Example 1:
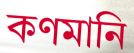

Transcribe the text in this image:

কণমানি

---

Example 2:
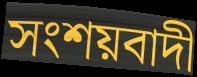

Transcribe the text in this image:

সংশয়বাদী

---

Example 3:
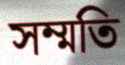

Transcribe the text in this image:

সম্মতি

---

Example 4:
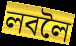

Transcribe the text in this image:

লবলৈ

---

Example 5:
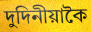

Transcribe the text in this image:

দুদিনীয়াকৈ